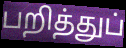
பறித்துப்